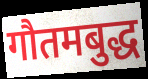
गौतमबुद्ध